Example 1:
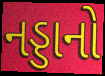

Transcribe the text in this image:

નડ્ડાનો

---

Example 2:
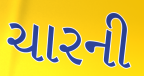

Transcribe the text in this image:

ચારની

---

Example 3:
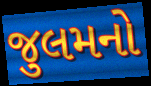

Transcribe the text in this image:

જુલમનો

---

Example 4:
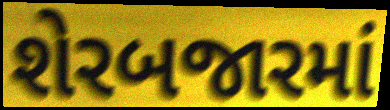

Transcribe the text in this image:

શેરબજારમાં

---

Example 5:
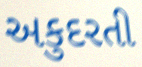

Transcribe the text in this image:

અકુદરતી